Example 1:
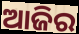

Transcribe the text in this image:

ଆଜିର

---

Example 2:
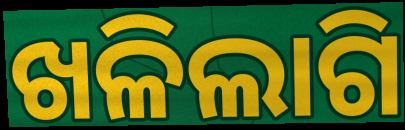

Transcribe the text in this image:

ଖଳିଲାଗି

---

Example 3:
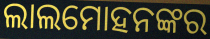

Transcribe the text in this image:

ଲାଲମୋହନଙ୍କର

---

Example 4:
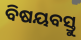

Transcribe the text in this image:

ବିଷୟବସ୍ତୁ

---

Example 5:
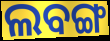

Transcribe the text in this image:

ଲବଙ୍ଗ